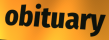
obituary